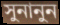
সুনানুন